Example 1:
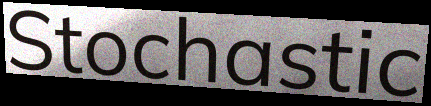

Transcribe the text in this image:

Stochastic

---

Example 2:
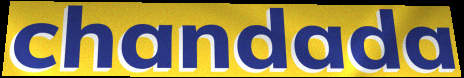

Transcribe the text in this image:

chandada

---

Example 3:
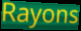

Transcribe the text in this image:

Rayons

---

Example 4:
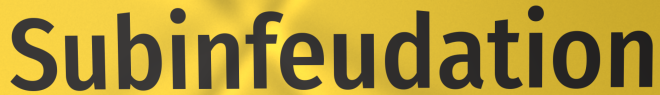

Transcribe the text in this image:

Subinfeudation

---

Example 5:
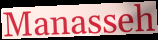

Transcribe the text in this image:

Manasseh